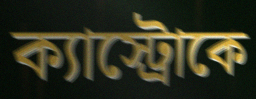
ক্যাস্ট্রোকে